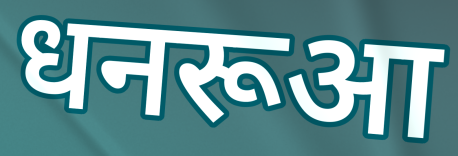
धनरूआ